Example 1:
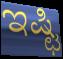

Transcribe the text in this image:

ಇಷ್ಟಿ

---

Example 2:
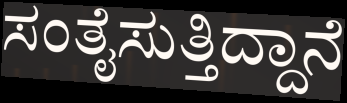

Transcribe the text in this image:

ಸಂತೈಸುತ್ತಿದ್ದಾನೆ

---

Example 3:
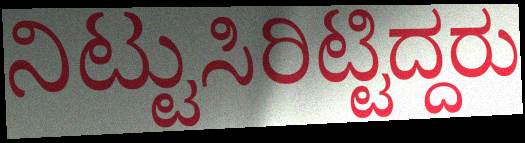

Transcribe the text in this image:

ನಿಟ್ಟುಸಿರಿಟ್ಟಿದ್ದರು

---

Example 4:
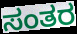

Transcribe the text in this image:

ಸಂತರ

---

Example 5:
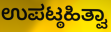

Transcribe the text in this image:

ಉಪಟ್ಠಹಿತ್ವಾ